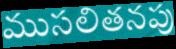
ముసలితనపు